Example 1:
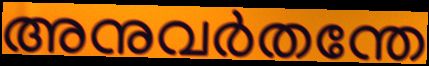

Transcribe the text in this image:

അനുവർതന്തേ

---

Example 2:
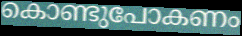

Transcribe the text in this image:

കൊണ്ടുപോകണം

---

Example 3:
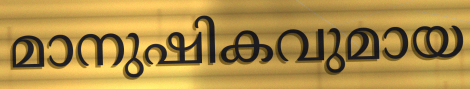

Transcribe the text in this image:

മാനുഷികവുമായ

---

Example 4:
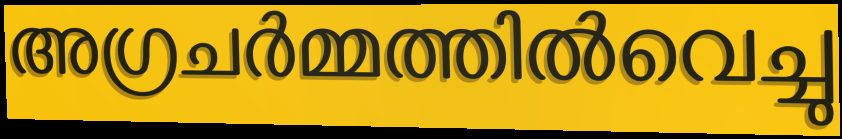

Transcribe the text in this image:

അഗ്രചർമ്മത്തിൽവെച്ചു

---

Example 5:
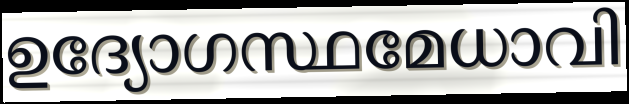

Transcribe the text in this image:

ഉദ്യോഗസ്ഥമേധാവി